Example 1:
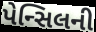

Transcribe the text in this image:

પેન્સિલની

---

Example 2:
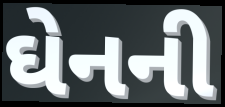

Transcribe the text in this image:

ઘેનની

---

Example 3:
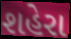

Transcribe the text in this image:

શહેરા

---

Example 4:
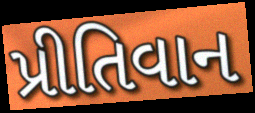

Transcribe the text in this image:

પ્રીતિવાન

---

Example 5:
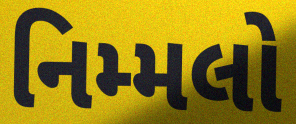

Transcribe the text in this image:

નિમ્મલો